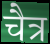
चैत्र